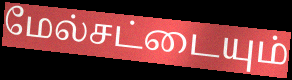
மேல்சட்டையும்